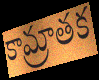
కామ్రాతక